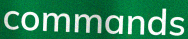
commands